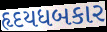
હૃદયધબકાર